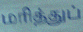
மரித்துப்